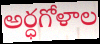
అర్ధగోళాల